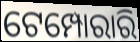
ଟେମ୍ପୋରାରି